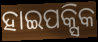
ହାଇପକ୍ସିକ